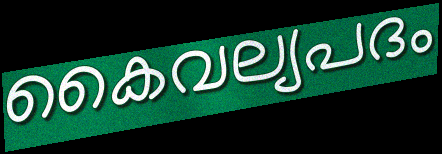
കൈവല്യപദം